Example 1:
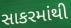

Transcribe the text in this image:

સાકરમાંથી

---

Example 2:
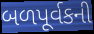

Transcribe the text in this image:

બળપૂર્વકની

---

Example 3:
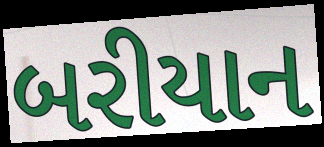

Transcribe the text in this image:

બરીયાન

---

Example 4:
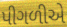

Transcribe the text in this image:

પીગળીએ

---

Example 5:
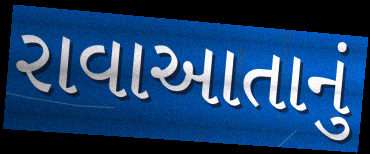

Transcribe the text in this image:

રાવાઆતાનું